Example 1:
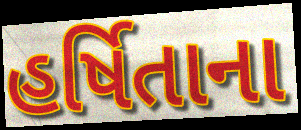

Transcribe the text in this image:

હર્ષિતાના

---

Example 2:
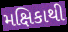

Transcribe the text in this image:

મક્ષિકાથી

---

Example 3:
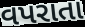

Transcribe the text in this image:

વપરાતા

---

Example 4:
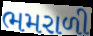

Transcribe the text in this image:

ભમરાળી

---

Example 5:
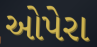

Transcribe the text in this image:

ઓપેરા